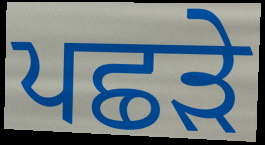
ਪਛੜੇ